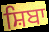
ਸ਼ਿਬਾ